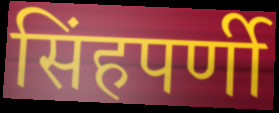
सिंहपर्णी